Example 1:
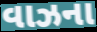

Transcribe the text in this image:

વાઝના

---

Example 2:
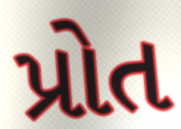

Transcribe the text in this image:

પ્રોત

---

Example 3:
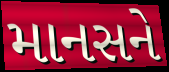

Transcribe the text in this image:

માનસને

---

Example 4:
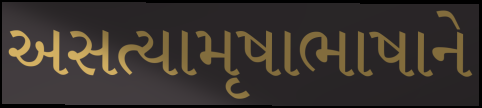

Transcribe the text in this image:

અસત્યામૃષાભાષાને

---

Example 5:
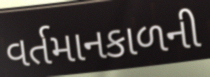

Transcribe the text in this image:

વર્તમાનકાળની